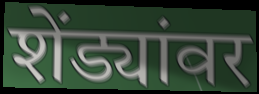
शेंड्यांवर